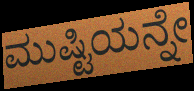
ಮುಷ್ಟಿಯನ್ನೇ